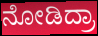
ನೋಡಿದ್ರಾ